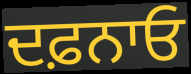
ਦਫ਼ਨਾਓ